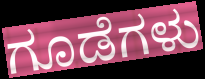
ಗೂಡೆಗಳು